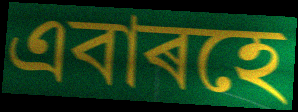
এবাৰহে